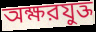
অক্ষরযুক্ত